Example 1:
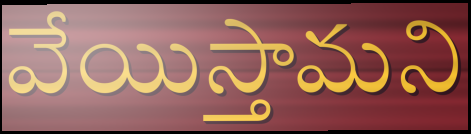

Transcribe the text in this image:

వేయిస్తామని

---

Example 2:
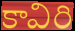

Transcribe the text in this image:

కావిరి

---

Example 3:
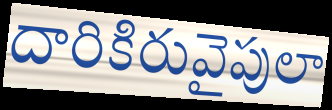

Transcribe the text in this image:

దారికిరువైపులా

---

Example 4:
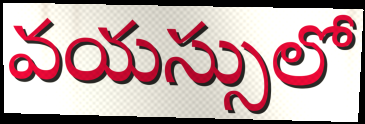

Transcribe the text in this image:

వయస్సులో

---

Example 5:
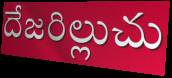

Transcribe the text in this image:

దేజరిల్లుచు